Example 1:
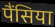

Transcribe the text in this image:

पैंसिया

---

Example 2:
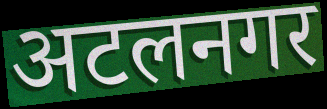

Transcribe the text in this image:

अटलनगर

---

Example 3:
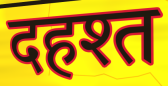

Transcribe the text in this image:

दहश्त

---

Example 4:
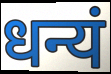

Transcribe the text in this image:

धन्यं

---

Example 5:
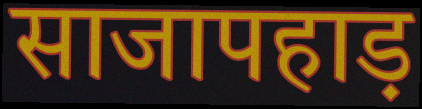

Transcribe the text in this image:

साजापहाड़